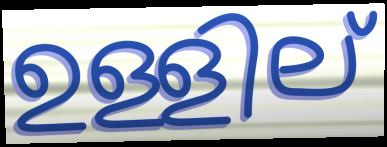
ഉള്ളില്